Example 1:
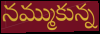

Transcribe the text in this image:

నమ్ముకున్న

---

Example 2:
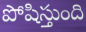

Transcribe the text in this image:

పోషిస్తుంది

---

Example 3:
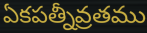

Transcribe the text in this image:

ఏకపత్నీవ్రతము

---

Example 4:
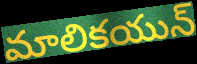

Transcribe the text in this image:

మాలికయున్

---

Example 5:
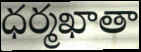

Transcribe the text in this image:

ధర్మఖాతా